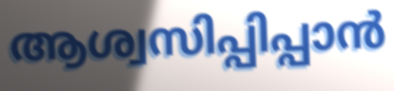
ആശ്വസിപ്പിപ്പാൻ